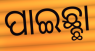
ପାଇଛ୍ଛା